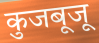
कुजबूजू